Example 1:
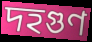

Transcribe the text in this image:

দহগুণ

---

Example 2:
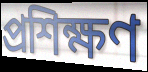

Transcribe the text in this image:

প্ৰশিক্ষণ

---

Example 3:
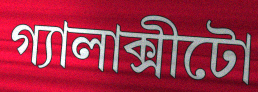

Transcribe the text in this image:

গ্যালাক্সীটো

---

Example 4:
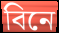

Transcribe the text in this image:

বিনে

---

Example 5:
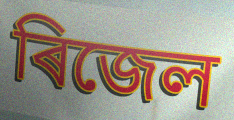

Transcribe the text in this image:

ৰিজেল